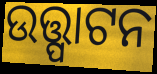
ଉତ୍ତ୍ପାଟନ